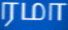
ரமா